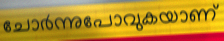
ചോർന്നുപോവുകയാണ്